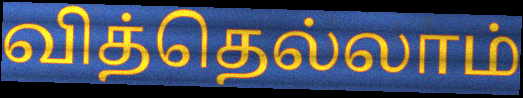
வித்தெல்லாம்